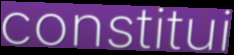
constitui